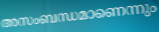
അസംബന്ധമാണെന്നും